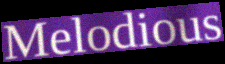
Melodious